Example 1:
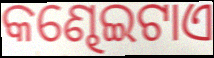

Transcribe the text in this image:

କଣ୍ଢେଇଟାଏ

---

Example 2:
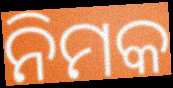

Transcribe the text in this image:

ନିମକ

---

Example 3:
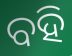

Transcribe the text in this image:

ବହି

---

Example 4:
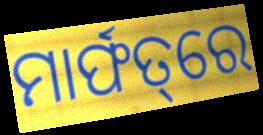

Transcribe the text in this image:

ମାର୍ଫତ୍‌ରେ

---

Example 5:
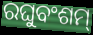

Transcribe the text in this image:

ରଘୁବଂଶମ୍